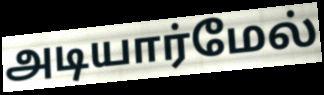
அடியார்மேல்